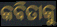
କବିତାକୁ